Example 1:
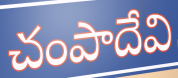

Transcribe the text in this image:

చంపాదేవి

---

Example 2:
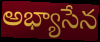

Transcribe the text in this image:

అభ్యాసేన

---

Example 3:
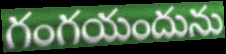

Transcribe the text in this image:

గంగయందును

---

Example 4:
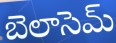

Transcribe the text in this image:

బెలాసెమ్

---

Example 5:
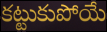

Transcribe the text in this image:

కట్టుకుపోయే